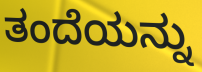
ತಂದೆಯನ್ನು